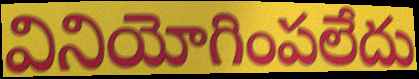
వినియోగింపలేదు